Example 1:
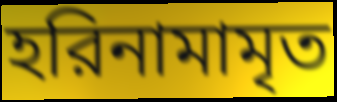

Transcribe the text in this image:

হরিনামামৃত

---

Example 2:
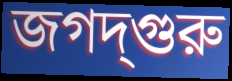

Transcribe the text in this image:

জগদ্‌গুরু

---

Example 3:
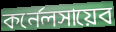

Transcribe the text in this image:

কর্নেলসায়েব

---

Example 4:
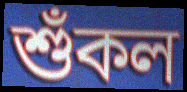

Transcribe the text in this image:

শুঁকল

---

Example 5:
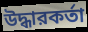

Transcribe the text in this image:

উদ্ধারকর্তা